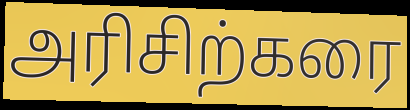
அரிசிற்கரை